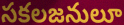
సకలజనులూ